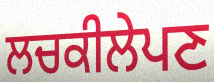
ਲਚਕੀਲੇਪਣ